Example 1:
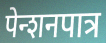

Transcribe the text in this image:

पेन्शनपात्र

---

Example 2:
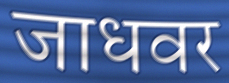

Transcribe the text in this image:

जाधवर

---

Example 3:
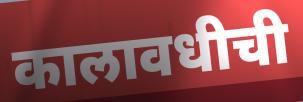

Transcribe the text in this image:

कालावधीची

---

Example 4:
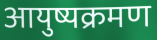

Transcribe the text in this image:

आयुष्यक्रमण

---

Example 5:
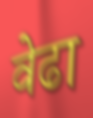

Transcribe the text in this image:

वेढा